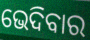
ଭେଦିବାର